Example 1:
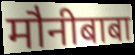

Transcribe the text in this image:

मौनीबाबा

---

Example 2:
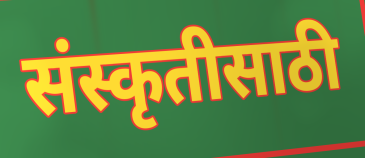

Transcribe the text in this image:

संस्कृतीसाठी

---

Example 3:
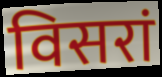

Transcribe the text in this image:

विसरां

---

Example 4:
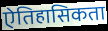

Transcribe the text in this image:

ऐतिहासिकता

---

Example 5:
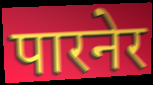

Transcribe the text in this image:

पारनेर